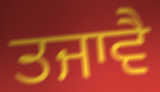
ਤਜਾਵੈ